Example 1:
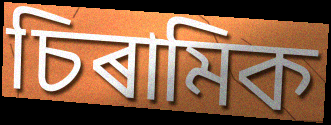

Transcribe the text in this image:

চিৰামিক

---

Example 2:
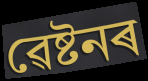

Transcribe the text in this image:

ৱেষ্টনৰ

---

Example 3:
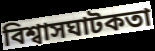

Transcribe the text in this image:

বিশ্বাসঘাটকতা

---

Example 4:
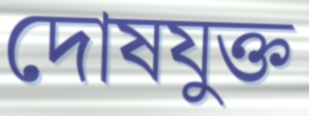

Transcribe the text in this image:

দোষযুক্ত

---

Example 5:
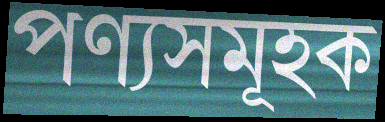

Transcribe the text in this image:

পণ্যসমূহক